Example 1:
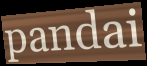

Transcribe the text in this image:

pandai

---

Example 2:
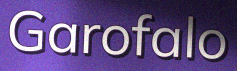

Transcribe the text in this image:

Garofalo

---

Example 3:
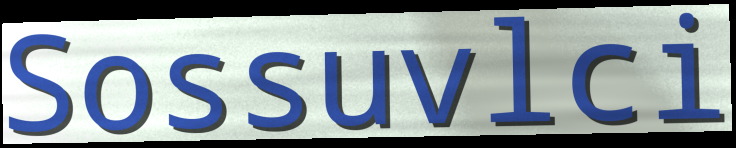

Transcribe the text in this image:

Sossuvlci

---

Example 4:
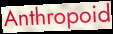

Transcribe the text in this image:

Anthropoid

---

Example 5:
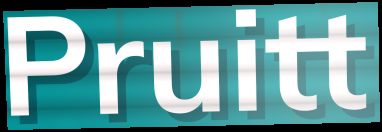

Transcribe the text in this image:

Pruitt